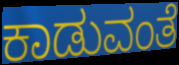
ಕಾಡುವಂತೆ